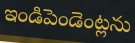
ఇండిపెండెంట్లను